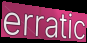
erratic